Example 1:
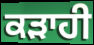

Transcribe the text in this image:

ਕੜਾਹੀ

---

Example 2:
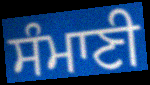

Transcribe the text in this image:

ਸੰਮਾਣੀ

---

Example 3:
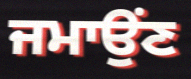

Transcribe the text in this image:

ਜਮਾਉਂਣ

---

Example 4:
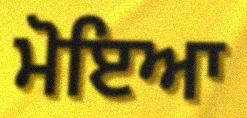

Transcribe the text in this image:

ਮੋਇਆ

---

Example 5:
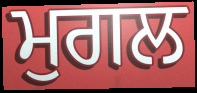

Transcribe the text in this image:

ਮੁਗਲ